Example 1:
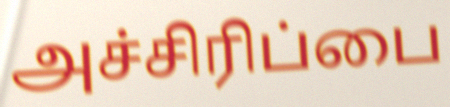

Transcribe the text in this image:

அச்சிரிப்பை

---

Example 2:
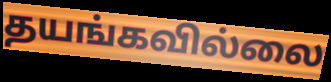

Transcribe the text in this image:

தயங்கவில்லை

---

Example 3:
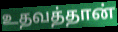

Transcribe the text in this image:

உதவத்தான்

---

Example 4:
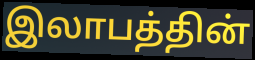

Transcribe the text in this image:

இலாபத்தின்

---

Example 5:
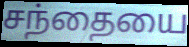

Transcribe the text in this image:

சந்தையை